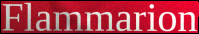
Flammarion